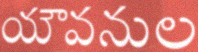
యౌవనుల